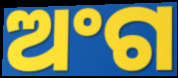
ଅଂଗ